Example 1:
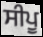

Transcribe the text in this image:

ਸੀਪੂ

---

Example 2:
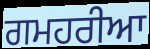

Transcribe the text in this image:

ਗਮਹਰੀਆ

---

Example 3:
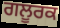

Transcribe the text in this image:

ਗਲੂਰਕ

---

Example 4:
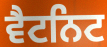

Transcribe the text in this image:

ਵੈਟਨਿਟ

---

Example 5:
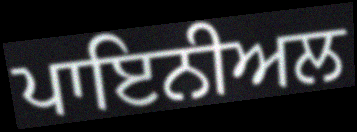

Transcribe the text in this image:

ਪਾਇਨੀਅਲ